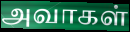
அவாகள்